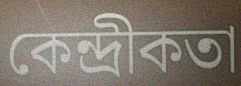
কেন্দ্রীকতা